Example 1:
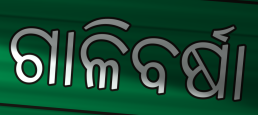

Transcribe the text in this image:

ଗାଳିବର୍ଷା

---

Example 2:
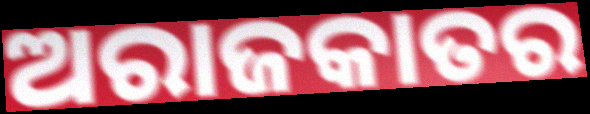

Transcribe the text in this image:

ଅରାଜକାତର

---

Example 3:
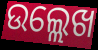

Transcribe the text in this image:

ଉଲ୍ଲେଖ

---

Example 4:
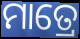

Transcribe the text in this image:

ମାତ୍ରେ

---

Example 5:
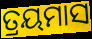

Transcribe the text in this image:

ତ୍ରୟମାସ